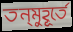
তন্‌মুহূর্তে